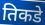
तिकडे